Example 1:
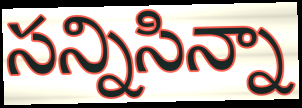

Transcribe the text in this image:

సన్నిసిన్నా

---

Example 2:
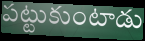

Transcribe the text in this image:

పట్టుకుంటాడు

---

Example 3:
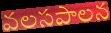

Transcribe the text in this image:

వలసపాలన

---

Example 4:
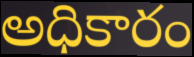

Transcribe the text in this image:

అధికారం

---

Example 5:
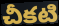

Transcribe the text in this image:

చీకటి